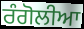
ਰੰਗੋਲੀਆ